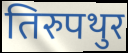
तिरुपथुर